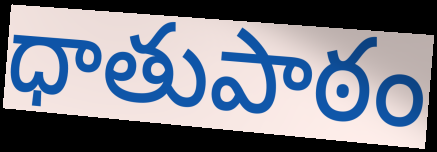
ధాతుపాఠం